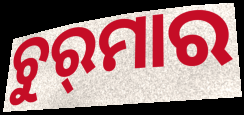
ଚୁର୍‍ମାର